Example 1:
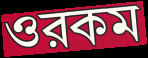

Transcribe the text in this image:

ওরকম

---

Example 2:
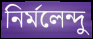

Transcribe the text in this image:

নির্মলেন্দু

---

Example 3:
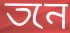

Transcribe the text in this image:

তনে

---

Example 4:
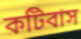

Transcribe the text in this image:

কটিবাস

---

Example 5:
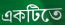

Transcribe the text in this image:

একটিতে